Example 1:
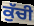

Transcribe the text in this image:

ਕੁੱਚੀ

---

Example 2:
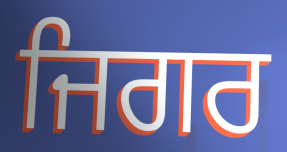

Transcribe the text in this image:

ਜਿਗਰ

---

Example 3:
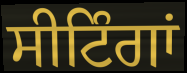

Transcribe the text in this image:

ਸੀਟਿੰਗਾਂ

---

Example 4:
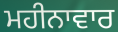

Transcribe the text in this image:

ਮਹੀਨਾਵਾਰ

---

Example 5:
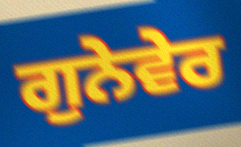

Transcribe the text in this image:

ਗੁਨੇਵੇਰ